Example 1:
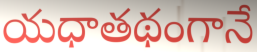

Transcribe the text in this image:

యధాతథంగానే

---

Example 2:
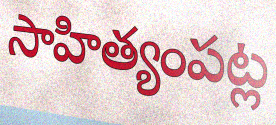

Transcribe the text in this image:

సాహిత్యంపట్ల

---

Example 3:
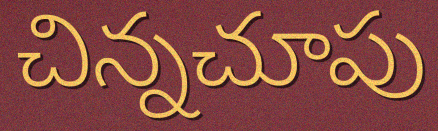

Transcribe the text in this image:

చిన్నచూపు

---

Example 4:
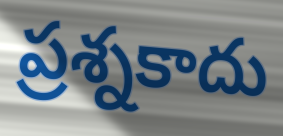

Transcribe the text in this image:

ప్రశ్నకాదు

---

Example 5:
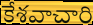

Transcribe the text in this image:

కేశవాచారి